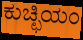
ಕುಚ್ಛಿಯಂ